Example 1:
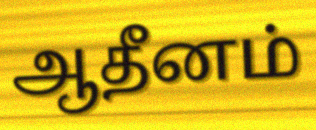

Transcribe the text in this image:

ஆதீனம்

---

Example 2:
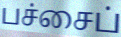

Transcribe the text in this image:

பச்சைப்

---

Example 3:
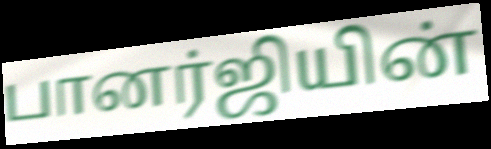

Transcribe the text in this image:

பானர்ஜியின்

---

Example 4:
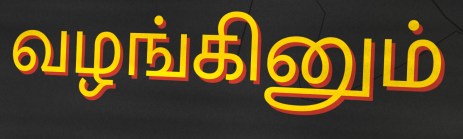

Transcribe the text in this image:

வழங்கினும்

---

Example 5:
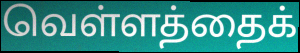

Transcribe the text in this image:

வெள்ளத்தைக்